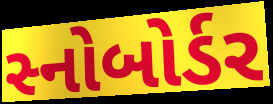
સ્નોબોર્ડર